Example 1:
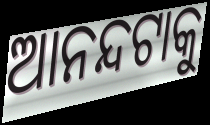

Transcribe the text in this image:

ଆନନ୍ଦଟାକୁ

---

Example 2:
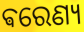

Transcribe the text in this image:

ଵରେଣ୍ୟ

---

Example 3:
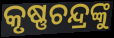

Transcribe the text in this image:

କୃଷ୍ଣଚନ୍ଦ୍ରଙ୍କୁ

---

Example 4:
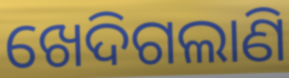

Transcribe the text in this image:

ଖେଦିଗଲାଣି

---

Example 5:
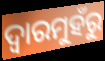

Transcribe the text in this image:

ଦ୍ଵାରମୁହଁରୁ